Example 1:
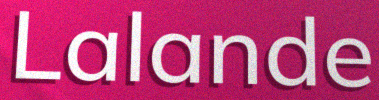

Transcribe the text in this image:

Lalande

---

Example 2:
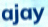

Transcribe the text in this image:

ajay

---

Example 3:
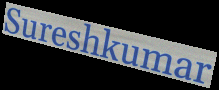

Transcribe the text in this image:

Sureshkumar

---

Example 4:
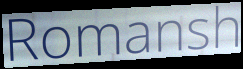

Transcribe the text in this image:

Romansh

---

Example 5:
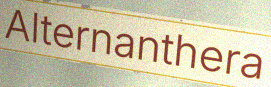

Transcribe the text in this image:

Alternanthera